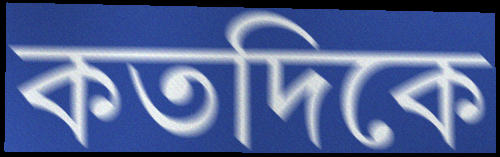
কতদিকে